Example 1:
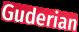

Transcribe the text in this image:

Guderian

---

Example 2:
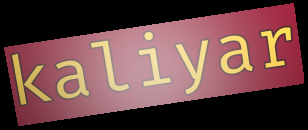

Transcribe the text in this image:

kaliyar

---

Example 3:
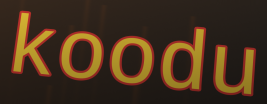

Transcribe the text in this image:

koodu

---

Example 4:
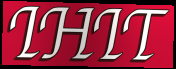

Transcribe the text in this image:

IHIT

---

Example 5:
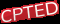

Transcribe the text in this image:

CPTED